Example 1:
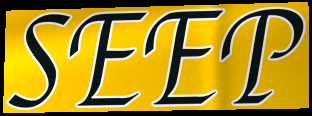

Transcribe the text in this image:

SEEP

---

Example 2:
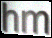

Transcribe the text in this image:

hm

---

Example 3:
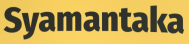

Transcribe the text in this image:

Syamantaka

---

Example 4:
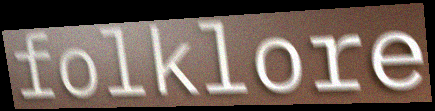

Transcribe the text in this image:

folklore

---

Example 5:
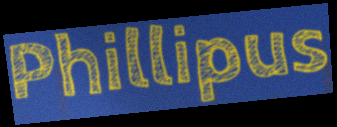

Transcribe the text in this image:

Phillipus